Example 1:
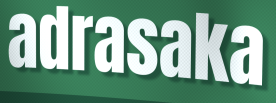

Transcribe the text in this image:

adrasaka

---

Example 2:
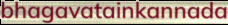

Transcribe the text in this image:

bhagavatainkannada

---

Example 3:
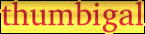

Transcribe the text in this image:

thumbigal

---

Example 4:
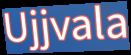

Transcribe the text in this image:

Ujjvala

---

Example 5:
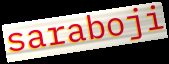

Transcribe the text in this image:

saraboji